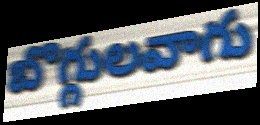
బొగ్గులవాగు